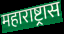
महाराष्ट्रास